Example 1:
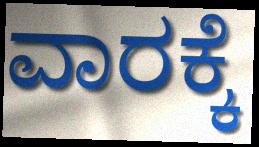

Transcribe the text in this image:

ವಾರಕ್ಕೆ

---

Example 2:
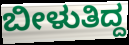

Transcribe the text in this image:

ಬೀಳುತಿದ್ದ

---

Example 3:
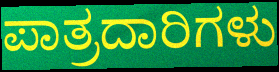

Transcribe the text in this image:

ಪಾತ್ರದಾರಿಗಳು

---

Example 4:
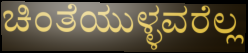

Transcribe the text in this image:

ಚಿಂತೆಯುಳ್ಳವರೆಲ್ಲ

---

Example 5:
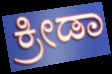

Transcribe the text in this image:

ಕ್ರೀಡಾ